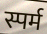
स्पर्म